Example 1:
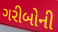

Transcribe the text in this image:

ગરીબોની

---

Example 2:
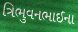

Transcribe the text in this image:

ત્રિભુવનભાઈના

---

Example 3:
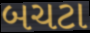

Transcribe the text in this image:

બચટા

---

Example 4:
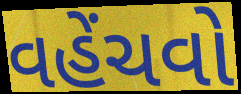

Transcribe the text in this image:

વહેંચવો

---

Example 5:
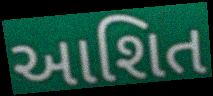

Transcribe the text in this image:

આશિત